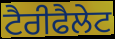
ਟੈਰੀਫੈਲੇਟ